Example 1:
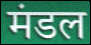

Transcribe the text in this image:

मंडल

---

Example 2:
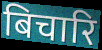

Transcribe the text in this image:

बिचारि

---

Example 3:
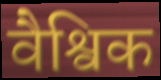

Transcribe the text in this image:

वैश्विक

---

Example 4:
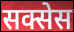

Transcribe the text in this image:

सक्सेस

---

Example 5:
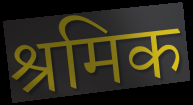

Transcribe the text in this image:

श्रमिक